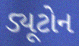
ડ્યૂટોન